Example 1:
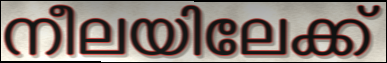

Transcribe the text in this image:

നീലയിലേക്ക്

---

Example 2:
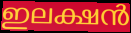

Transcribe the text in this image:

ഇലക്ഷൻ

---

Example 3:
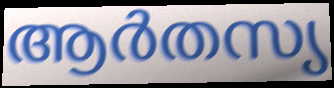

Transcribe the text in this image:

ആർതസ്യ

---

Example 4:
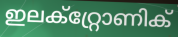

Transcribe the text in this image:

ഇലക്റ്റ്രോണിക്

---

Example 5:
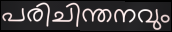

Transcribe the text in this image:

പരിചിന്തനവും